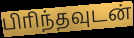
பிரிந்தவுடன்